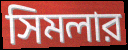
সিমলার